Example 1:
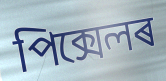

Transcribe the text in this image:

পিক্সেলৰ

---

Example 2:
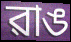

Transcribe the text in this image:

ৱাঙ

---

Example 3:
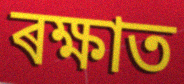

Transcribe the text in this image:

ৰক্ষাত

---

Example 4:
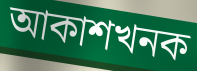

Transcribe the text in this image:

আকাশখনক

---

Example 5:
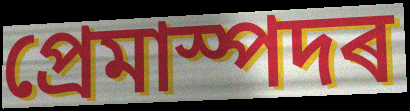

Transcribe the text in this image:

প্ৰেমাস্পদৰ